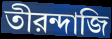
তীরন্দাজি